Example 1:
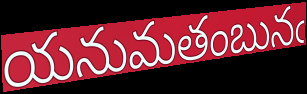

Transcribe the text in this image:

యనుమతంబునఁ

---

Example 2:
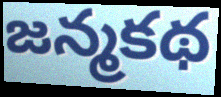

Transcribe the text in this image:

జన్మకథ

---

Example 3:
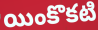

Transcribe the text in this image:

యింకొకటి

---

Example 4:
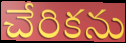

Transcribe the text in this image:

చేరికను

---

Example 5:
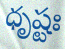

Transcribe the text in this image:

ధృష్టః